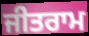
ਜੀਤਰਾਮ